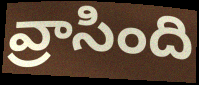
వ్రాసింది